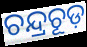
ଚନ୍ଦ୍ରଚୂଡ଼